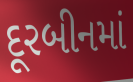
દૂરબીનમાં